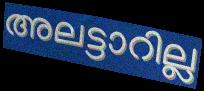
അലട്ടാറില്ല